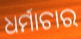
ଧର୍ମାଚାର